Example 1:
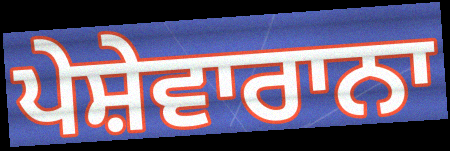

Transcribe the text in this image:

ਪੇਸ਼ੇਵਾਰਾਨਾ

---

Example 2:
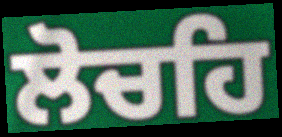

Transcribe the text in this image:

ਲੋਚਹਿ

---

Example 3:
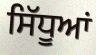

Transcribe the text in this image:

ਸਿੱਧੂਆਂ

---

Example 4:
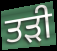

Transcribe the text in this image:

ਤੜੀ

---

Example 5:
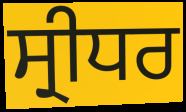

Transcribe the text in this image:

ਸ੍ਰੀਧਰ